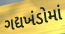
ગદ્યખંડોમાં